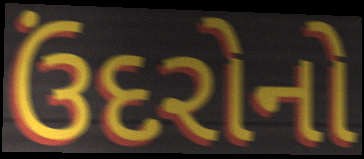
ઉંદરોનો